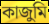
কাজুমি